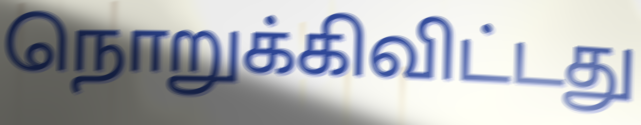
நொறுக்கிவிட்டது